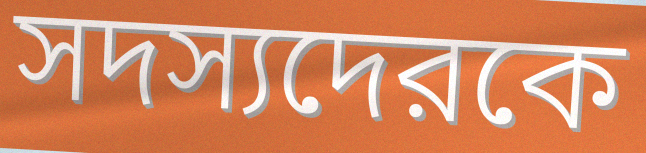
সদস্যদেরকে